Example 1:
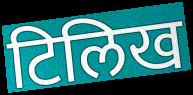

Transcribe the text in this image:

टिलिख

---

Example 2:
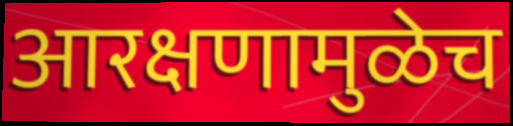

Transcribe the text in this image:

आरक्षणामुळेच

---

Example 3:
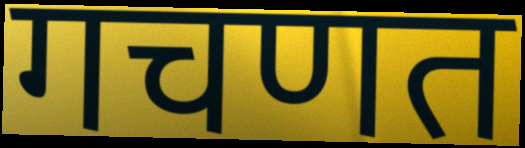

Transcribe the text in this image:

गचणत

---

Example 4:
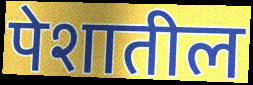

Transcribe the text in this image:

पेशातील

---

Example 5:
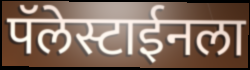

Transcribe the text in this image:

पॅलेस्टाईनला